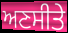
ਅਣਸੀਤੇ